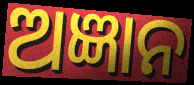
ଅଜ୍ଞାନ